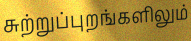
சுற்றுப்புறங்களிலும்